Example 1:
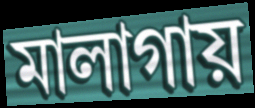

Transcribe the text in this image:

মালাগায়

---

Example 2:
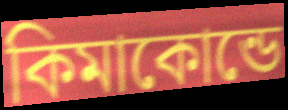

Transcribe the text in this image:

কিমাকোন্ডে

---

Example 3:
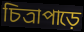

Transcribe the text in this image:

চিত্রাপাড়ে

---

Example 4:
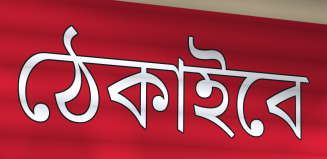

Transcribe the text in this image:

ঠেকাইবে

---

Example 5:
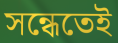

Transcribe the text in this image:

সন্ধেতেই